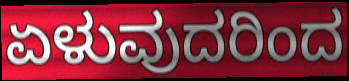
ಏಳುವುದರಿಂದ